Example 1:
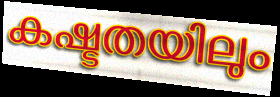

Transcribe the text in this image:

കഷ്ടതയിലും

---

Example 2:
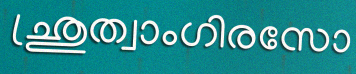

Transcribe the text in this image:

ഛ്രുത്വാംഗിരസോ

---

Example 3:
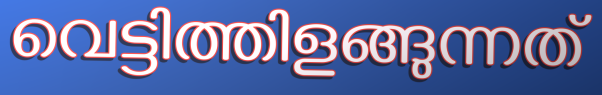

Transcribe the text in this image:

വെട്ടിത്തിളങ്ങുന്നത്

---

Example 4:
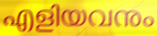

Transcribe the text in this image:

എളിയവനും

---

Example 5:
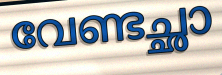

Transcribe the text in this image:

വേണ്ടച്ഛാ